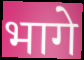
भागे